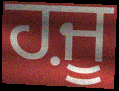
ਹ਼ਜੂ